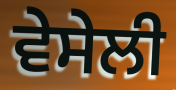
ਵੇਸੇਲੀ